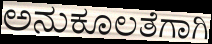
ಅನುಕೂಲತೆಗಾಗಿ